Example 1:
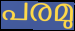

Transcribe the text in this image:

പരമു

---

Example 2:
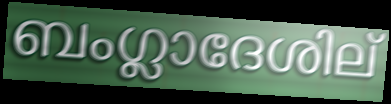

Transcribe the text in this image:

ബംഗ്ലാദേശില്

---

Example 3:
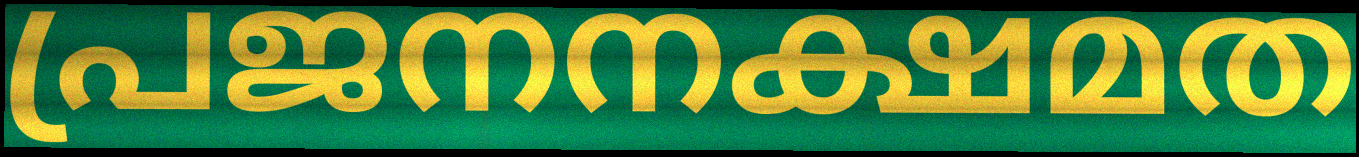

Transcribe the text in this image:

പ്രജനനക്ഷമത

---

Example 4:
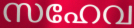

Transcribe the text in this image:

സഹേവ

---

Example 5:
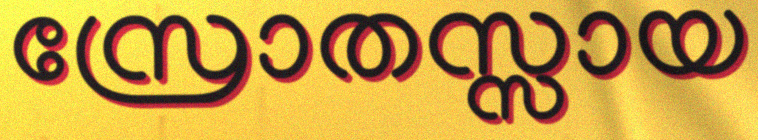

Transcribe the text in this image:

സ്രോതസ്സായ